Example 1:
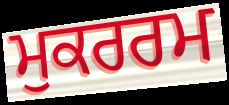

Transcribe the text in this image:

ਮੁਕਰਰਮ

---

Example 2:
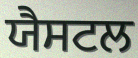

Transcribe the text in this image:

ਯੈਸਟਲ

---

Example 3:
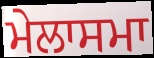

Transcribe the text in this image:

ਮੇਲਾਸਮਾ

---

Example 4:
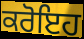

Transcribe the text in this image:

ਕਰੋਇਹ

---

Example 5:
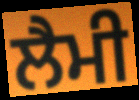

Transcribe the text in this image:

ਲੈਮੀ